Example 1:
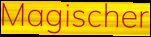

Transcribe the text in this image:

Magischer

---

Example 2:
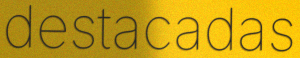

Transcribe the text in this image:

destacadas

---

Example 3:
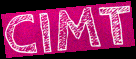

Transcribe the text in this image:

CIMT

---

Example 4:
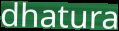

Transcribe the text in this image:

dhatura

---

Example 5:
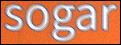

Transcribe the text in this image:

sogar